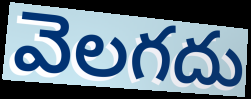
వెలగదు